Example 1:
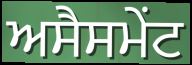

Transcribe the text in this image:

ਅਸੈਸਮੇਂਟ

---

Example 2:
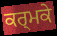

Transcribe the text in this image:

ਕਰ੍ਮਕੇ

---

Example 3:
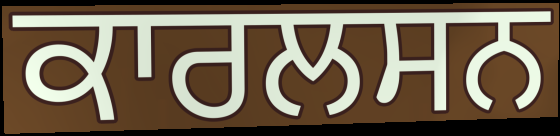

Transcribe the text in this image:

ਕਾਰਲਸਨ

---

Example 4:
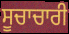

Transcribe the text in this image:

ਸੂਚਾਚਾਰੀ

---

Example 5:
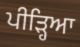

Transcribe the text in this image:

ਪੀੜ੍ਹਿਆ